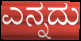
ಎನ್ನದು